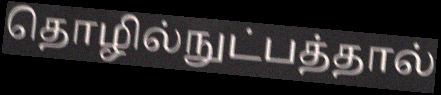
தொழில்நுட்பத்தால்